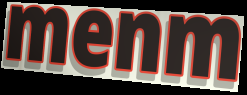
menm